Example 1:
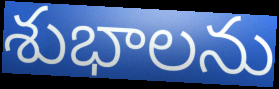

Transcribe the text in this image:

శుభాలను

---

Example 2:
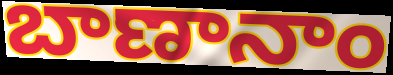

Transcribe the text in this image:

బాణానాం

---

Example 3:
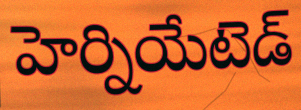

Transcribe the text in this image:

హెర్నియేటెడ్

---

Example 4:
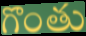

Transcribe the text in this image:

గొంతు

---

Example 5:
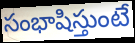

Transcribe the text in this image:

సంభాషిస్తుంటే